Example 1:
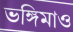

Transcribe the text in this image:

ভঙ্গিমাও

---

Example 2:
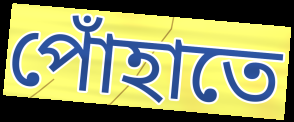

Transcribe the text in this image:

পোঁহাতে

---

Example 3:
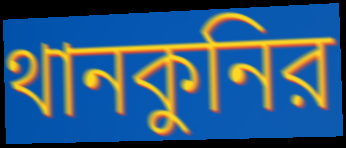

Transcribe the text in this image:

থানকুনির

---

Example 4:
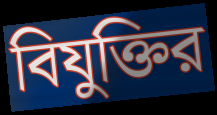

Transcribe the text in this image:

বিযুক্তির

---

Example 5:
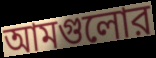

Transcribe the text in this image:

আমগুলোর